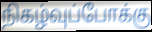
நிகழ்வுப்போக்கு